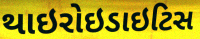
થાઇરોઇડાઇટિસ